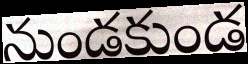
నుండకుండ